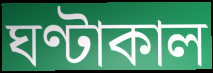
ঘণ্টাকাল